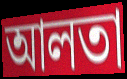
আলতা